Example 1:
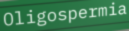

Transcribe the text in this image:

Oligospermia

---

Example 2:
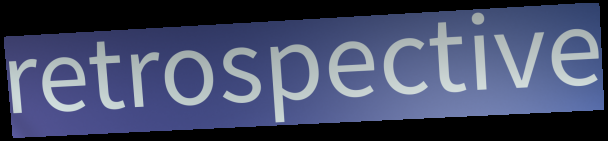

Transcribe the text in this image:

retrospective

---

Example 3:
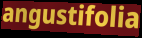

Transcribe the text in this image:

angustifolia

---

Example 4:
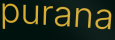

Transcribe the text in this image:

purana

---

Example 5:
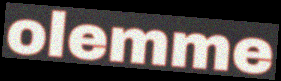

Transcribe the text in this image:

olemme